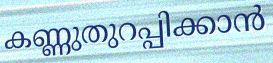
കണ്ണുതുറപ്പിക്കാൻ